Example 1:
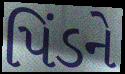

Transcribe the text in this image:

પિંડને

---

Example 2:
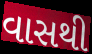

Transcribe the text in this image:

વાસથી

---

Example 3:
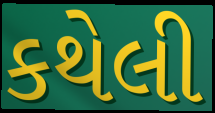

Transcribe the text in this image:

કથેલી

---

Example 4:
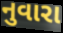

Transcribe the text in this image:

નુવારા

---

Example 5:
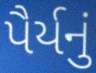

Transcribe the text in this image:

પૈર્યનું